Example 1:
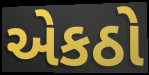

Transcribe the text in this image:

એકઠો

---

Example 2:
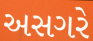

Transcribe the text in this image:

અસગરે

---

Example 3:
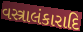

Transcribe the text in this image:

વસ્ત્રાલંકારાદિ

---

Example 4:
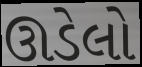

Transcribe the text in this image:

ઊડેલો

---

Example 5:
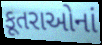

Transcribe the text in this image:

કૂતરાઓનાં